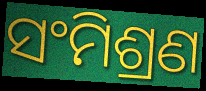
ସଂମିଶ୍ରଣ